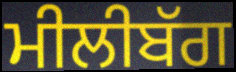
ਮੀਲੀਬੱਗ